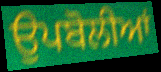
ਉਪਬੋਲੀਆਂ